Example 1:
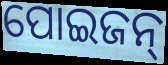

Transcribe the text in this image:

ପୋଇଜନ୍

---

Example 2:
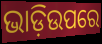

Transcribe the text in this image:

ଭାଡ଼ିଉପରେ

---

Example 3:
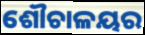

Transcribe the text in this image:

ଶୌଚାଳୟର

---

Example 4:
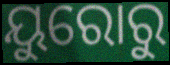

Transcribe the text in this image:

ୟୁରୋରୁ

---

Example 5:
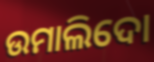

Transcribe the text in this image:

ଉମାଲିଦୋ